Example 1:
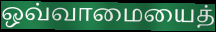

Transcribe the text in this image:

ஒவ்வாமையைத்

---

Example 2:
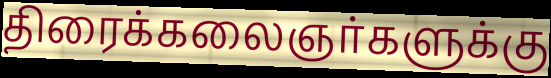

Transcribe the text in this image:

திரைக்கலைஞர்களுக்கு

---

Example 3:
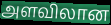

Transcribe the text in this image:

அளவிலான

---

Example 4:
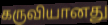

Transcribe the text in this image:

கருவியானது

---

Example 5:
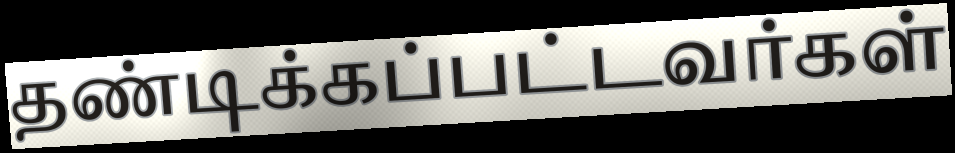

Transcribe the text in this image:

தண்டிக்கப்பட்டவர்கள்